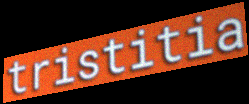
tristitia